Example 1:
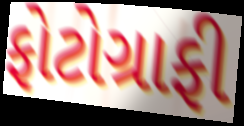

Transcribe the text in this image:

ફોટોગ્રાફી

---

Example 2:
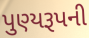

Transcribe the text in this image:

પુણ્યરૂપની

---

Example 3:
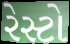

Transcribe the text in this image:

રેસ્ટો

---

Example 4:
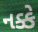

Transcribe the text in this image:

નક્કે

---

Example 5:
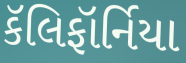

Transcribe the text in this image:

કૅલિફૉર્નિયા